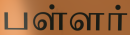
பள்ளர்